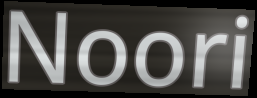
Noori